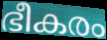
ഭീകരം